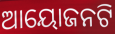
ଆୟୋଜନଟି